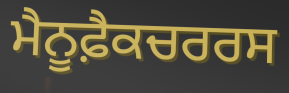
ਮੈਨੂਫ਼ੈਕਚਰਰਸ